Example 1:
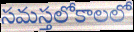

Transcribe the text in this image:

సమస్తలోకాలలో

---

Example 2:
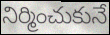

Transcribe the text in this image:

నిర్మించుకునే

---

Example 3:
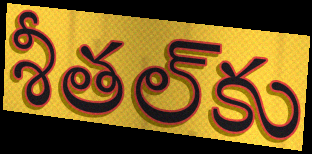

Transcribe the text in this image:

శీతల్‌కు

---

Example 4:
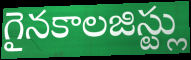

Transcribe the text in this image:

గైనకాలజిస్ట్లు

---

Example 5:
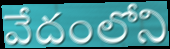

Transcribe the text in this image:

వేదంలోని